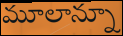
మూలాన్నూ